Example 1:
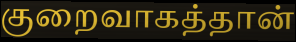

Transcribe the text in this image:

குறைவாகத்தான்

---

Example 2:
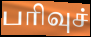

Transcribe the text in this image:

பரிவுச்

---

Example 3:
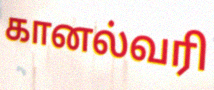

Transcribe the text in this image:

கானல்வரி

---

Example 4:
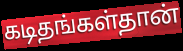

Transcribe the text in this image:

கடிதங்கள்தான்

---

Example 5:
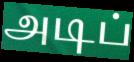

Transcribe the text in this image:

அடிப்